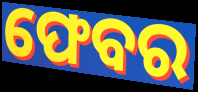
ଫେବର